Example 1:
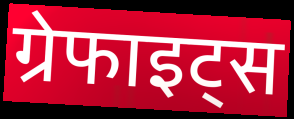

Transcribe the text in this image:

ग्रेफाइट्स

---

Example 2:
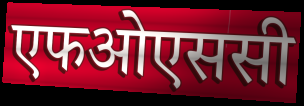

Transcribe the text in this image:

एफओएससी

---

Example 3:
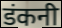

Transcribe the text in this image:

डंकनी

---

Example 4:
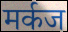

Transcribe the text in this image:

मर्कज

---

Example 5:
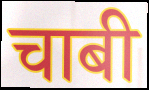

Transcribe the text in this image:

चाबी